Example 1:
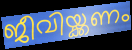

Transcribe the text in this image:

ജീവിയ്ക്കണം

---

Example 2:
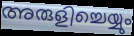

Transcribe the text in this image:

അരുളിച്ചെയ്യും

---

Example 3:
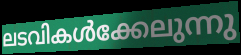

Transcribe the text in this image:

ലടവികൾക്കേലുന്നു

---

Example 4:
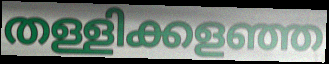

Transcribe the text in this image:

തള്ളിക്കളഞ്ഞ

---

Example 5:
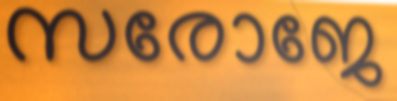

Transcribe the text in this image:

സരോജേ